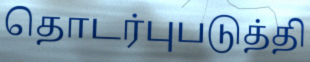
தொடர்புபடுத்தி